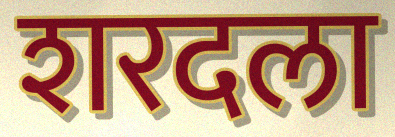
शरदला